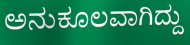
ಅನುಕೂಲವಾಗಿದ್ದು